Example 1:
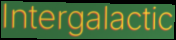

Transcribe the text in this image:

Intergalactic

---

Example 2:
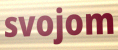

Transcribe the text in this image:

svojom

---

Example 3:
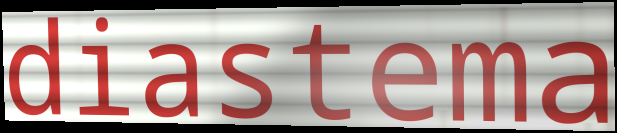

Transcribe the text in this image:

diastema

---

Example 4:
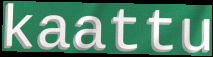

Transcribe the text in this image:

kaattu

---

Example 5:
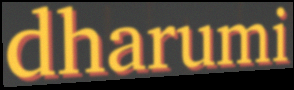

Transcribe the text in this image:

dharumi